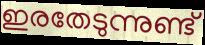
ഇരതേടുന്നുണ്ട്